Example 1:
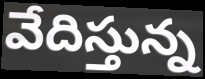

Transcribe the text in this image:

వేదిస్తున్న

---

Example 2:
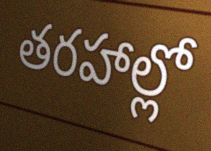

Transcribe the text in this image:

తరహాల్లో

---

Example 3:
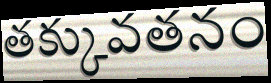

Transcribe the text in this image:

తక్కువతనం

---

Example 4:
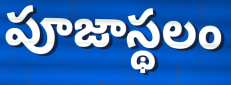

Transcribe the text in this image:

పూజాస్థలం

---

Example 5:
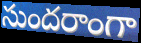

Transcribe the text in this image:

సుందరాంగా